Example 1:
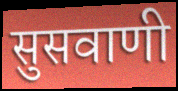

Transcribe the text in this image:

सुसवाणी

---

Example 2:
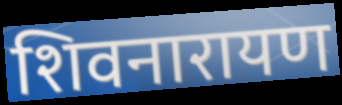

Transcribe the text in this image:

शिवनारायण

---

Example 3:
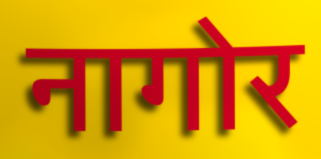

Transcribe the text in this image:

नागोर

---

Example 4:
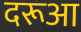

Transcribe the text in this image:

दरूआ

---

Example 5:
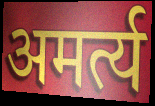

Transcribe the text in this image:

अमर्त्य